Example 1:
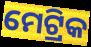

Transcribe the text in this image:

ମେଟ୍ରିକ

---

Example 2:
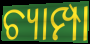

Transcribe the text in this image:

ଚ୍ୟାମ୍ପା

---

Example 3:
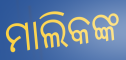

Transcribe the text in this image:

ମାଲିକଙ୍କ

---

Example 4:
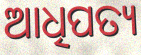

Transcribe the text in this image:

ଆଧିପତ୍ୟ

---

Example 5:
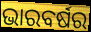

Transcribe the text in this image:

ଭାରବର୍ଷର